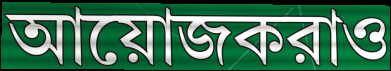
আয়োজকরাও